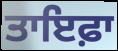
ਤਾਇਫ਼ਾ